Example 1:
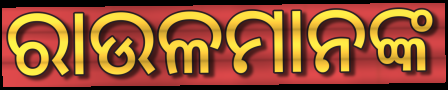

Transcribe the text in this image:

ରାଉଳମାନଙ୍କ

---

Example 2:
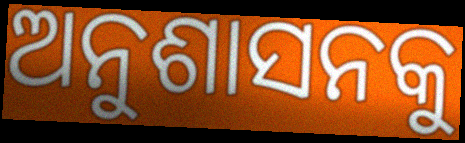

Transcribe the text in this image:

ଅନୁଶାସନକୁ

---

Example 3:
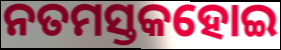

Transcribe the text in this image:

ନତମସ୍ତକହୋଇ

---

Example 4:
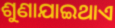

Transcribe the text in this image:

ଶୁଣାଯାଇଥାଏ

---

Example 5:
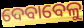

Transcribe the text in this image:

ଦେବାବେଳୁ